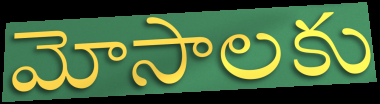
మోసాలకు